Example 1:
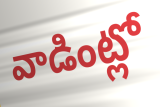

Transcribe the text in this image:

వాడింట్లో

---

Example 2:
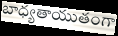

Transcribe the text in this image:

బాధ్యతాయుతంగా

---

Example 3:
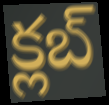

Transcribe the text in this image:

క్లబ్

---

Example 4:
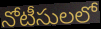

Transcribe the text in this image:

నోటీసులలో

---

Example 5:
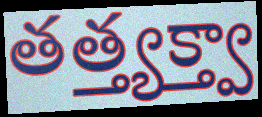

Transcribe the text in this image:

తత్త్యక్త్వా